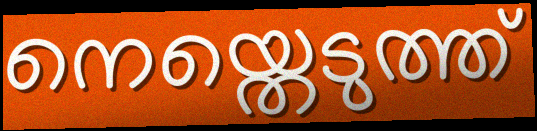
നെയ്തെടുത്ത്